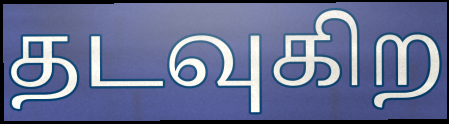
தடவுகிற